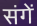
संगें